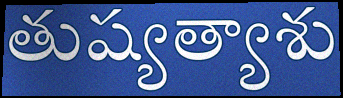
తుష్యత్యాశు